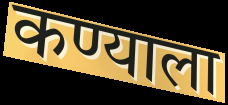
कण्याला